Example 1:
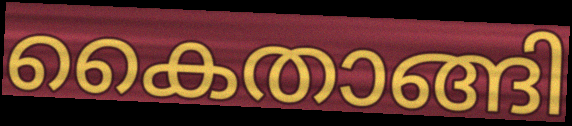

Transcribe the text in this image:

കൈതാങ്ങി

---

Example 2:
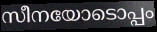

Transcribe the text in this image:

സീനയോടൊപ്പം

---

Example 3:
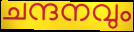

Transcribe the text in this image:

ചന്ദനവും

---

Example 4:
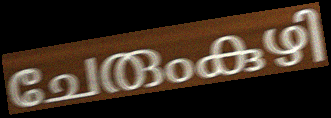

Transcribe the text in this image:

ചേരുംകുഴി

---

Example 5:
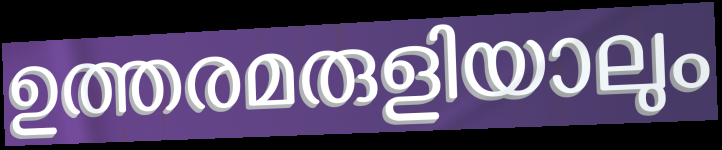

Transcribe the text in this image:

ഉത്തരമരുളിയാലും